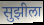
सुझीला